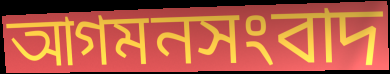
আগমনসংবাদ